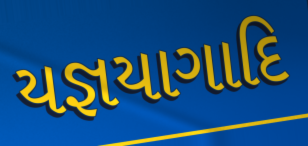
યજ્ઞયાગાદિ